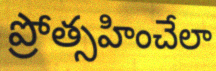
ప్రోత్సహించేలా